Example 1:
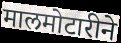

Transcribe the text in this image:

मालमोटारीने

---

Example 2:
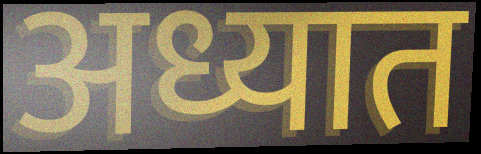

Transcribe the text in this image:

अध्यात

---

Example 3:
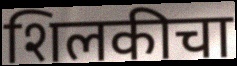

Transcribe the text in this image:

शिलकीचा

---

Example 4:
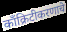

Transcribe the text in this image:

काँक्रिटीकरणाचे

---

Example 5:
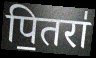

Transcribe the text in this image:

पि॒तरा॑